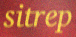
sitrep